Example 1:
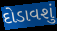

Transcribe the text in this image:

દોડાવશું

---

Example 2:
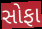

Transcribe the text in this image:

સોફા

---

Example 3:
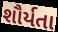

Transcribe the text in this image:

શૌર્યતા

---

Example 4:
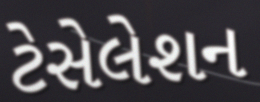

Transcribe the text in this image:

ટેસેલેશન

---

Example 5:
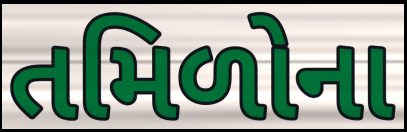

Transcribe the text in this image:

તમિળોના